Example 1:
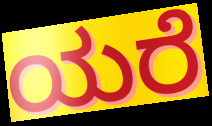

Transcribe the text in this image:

ಯರೆ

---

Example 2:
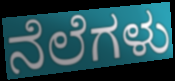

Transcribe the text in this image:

ನೆಲೆಗಳು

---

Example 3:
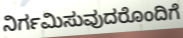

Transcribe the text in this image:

ನಿರ್ಗಮಿಸುವುದರೊಂದಿಗೆ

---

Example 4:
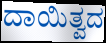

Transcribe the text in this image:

ದಾಯಿತ್ವದ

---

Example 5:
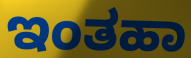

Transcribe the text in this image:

ಇಂತಹಾ